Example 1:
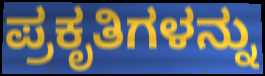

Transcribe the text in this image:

ಪ್ರಕೃತಿಗಳನ್ನು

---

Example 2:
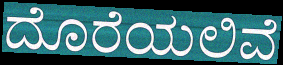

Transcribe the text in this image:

ದೊರೆಯಲಿವೆ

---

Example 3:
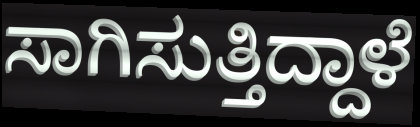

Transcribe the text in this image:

ಸಾಗಿಸುತ್ತಿದ್ದಾಳೆ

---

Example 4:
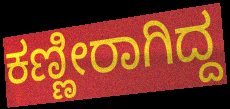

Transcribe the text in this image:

ಕಣ್ಣೀರಾಗಿದ್ದ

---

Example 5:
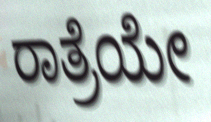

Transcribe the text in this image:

ರಾತ್ರೆಯೇ